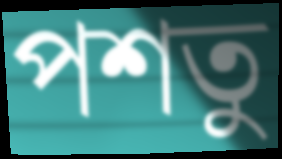
পশতু